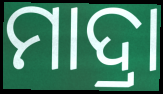
ମାଦ୍ରା